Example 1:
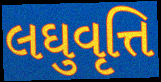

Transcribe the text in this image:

લઘુવૃત્તિ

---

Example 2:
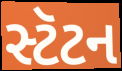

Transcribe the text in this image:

સ્ટૅટન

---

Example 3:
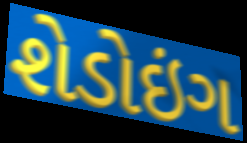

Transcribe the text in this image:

શેડોઇંગ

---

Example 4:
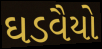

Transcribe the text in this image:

ઘડવૈયો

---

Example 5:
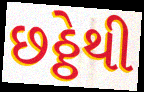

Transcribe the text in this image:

છઠ્ઠેથી